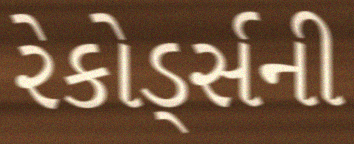
રેકોર્ડ્સની